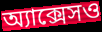
অ্যাক্সেসও